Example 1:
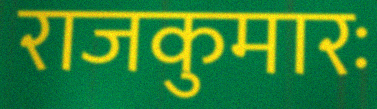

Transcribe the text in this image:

राजकुमारः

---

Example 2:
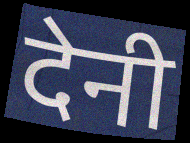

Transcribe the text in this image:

देनी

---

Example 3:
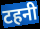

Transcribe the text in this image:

टहनी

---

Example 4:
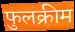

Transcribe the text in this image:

फुलक्रीम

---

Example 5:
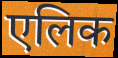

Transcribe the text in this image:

एलिक